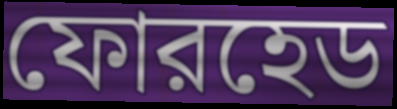
ফোরহেড